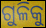
ଗୁଳିକୁ